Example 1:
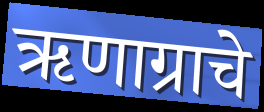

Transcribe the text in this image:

ऋणाग्राचे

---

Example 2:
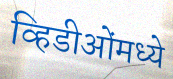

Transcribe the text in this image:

व्हिडीओंमध्ये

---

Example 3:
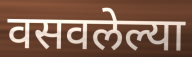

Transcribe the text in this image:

वसवलेल्या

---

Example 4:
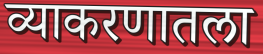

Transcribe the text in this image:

व्याकरणातला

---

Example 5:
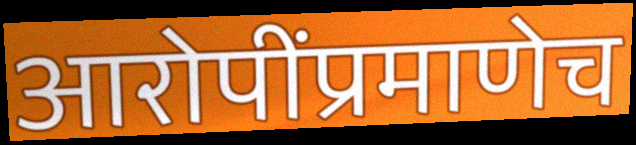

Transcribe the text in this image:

आरोपींप्रमाणेच